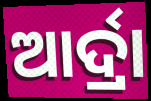
ଆର୍ଦ୍ରା